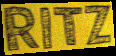
RITZ